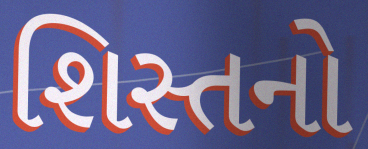
શિસ્તનો